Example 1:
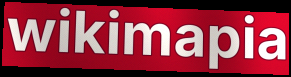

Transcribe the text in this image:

wikimapia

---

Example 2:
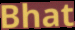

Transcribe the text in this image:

Bhat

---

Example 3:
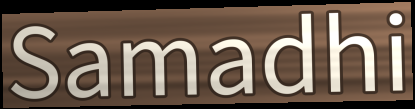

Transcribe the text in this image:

Samadhi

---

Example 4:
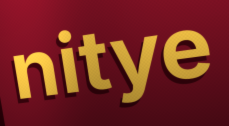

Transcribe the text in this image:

nitye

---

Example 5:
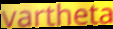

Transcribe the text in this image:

vartheta